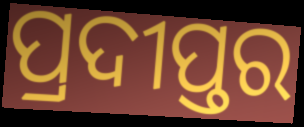
ପ୍ରଦୀପ୍ତର